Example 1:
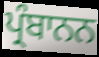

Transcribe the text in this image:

ਪ੍ਰੰਬਾਨਨ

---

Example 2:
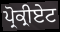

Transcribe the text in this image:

ਪ੍ਰੋਕ੍ਰੀਏਟ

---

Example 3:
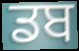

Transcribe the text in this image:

ਡਬ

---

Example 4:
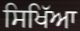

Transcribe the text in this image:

ਸਿਖਿੱਆ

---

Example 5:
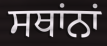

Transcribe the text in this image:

ਸਥਾਂਨਾਂ